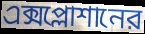
এক্সপ্লোশানের